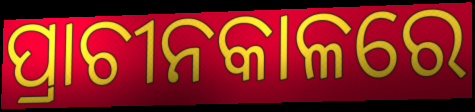
ପ୍ରାଚୀନକାଳରେ